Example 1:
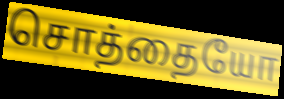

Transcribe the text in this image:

சொத்தையோ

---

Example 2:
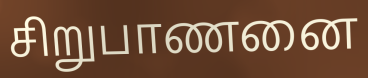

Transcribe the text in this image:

சிறுபாணனை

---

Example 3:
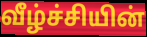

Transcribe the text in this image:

வீழ்ச்சியின்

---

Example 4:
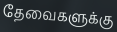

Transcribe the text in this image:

தேவைகளுக்கு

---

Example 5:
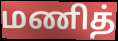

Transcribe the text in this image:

மணித்